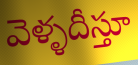
వెళ్ళదీస్తూ